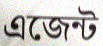
এজেন্ট